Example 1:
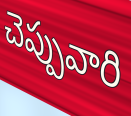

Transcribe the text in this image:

చెప్పువారి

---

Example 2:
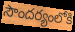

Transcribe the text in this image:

సౌందర్యంలోకి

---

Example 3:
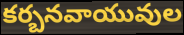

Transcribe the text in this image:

కర్బనవాయువుల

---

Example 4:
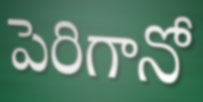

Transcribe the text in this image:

పెరిగానో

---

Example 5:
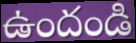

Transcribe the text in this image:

ఉందండి